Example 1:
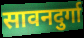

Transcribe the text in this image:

सावनदुर्गा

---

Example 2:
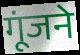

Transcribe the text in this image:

गूंजने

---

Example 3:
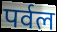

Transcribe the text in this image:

पर्वल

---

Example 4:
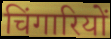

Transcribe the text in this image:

चिंगारियों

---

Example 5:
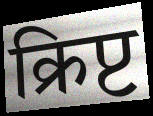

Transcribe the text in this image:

क्रिप्ट